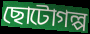
ছোটোগল্প